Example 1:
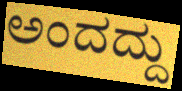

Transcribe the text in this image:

ಅಂದದ್ದು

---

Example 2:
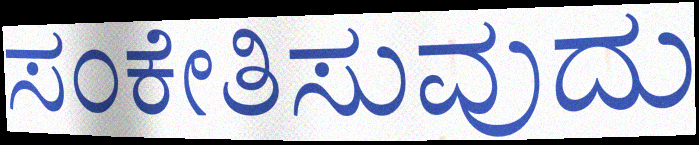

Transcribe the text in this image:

ಸಂಕೇತಿಸುವುದು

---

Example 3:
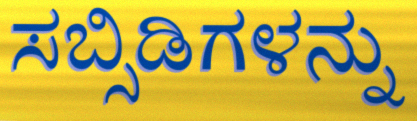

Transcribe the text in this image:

ಸಬ್ಸಿಡಿಗಳನ್ನು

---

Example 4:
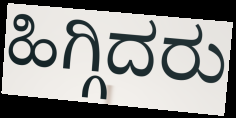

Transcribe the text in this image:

ಹಿಗ್ಗಿದರು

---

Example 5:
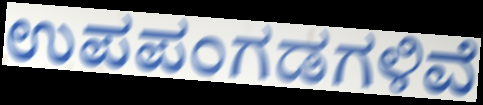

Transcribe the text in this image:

ಉಪಪಂಗಡಗಳಿವೆ